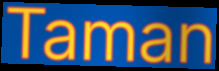
Taman